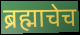
ब्रह्माचेच